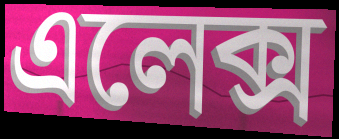
এলেক্স